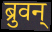
ब्रुवन्